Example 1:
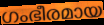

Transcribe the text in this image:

ഗംഭീരമായ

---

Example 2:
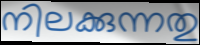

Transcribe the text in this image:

നിലക്കുന്നതു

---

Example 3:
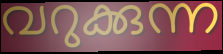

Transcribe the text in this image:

വറുക്കുന്ന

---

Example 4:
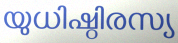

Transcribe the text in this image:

യുധിഷ്ഠിരസ്യ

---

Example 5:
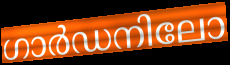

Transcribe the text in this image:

ഗാർഡനിലോ